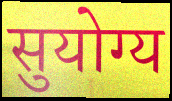
सुयोग्य